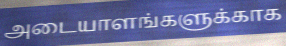
அடையாளங்களுக்காக